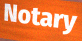
Notary